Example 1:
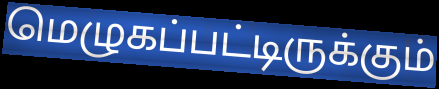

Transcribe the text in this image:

மெழுகப்பட்டிருக்கும்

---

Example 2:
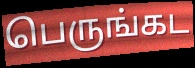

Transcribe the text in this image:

பெருங்கட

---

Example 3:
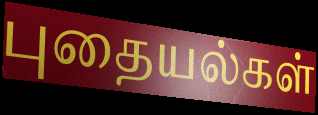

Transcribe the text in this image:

புதையல்கள்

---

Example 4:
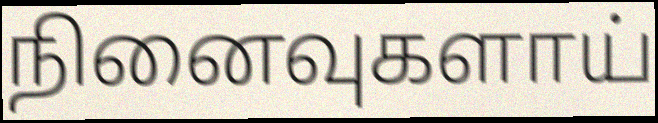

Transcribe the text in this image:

நினைவுகளாய்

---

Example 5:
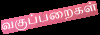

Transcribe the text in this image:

வகுப்பறைகள்